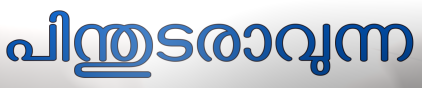
പിന്തുടരാവുന്ന